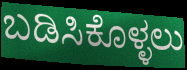
ಬಡಿಸಿಕೊಳ್ಳಲು